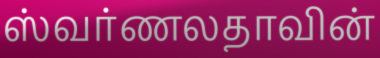
ஸ்வர்ணலதாவின்